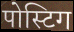
पोस्टिग